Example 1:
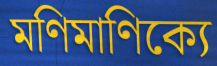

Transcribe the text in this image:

মণিমাণিক্যে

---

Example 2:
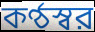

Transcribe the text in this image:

কণ্ঠস্বর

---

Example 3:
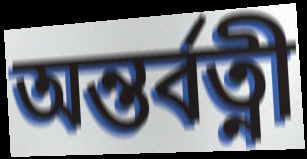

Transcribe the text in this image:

অন্তর্বত্নী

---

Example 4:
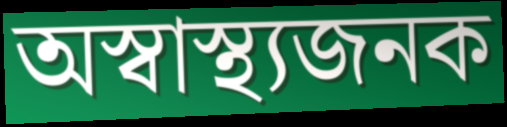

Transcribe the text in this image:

অস্বাস্থ্যজনক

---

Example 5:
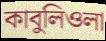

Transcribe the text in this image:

কাবুলিওলা